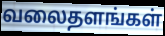
வலைதளங்கள்